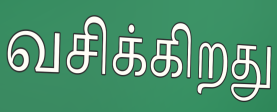
வசிக்கிறது